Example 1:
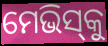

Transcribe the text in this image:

ମେଭିସ୍‌କୁ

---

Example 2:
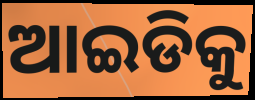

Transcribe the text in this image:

ଆଇଡିକୁ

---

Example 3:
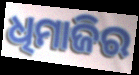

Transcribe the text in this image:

ଧିମାଜିର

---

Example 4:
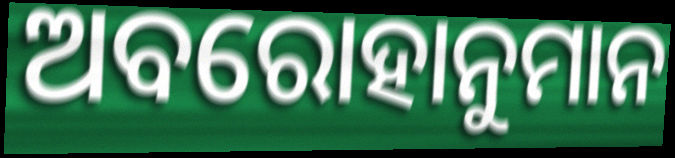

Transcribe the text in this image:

ଅବରୋହାନୁମାନ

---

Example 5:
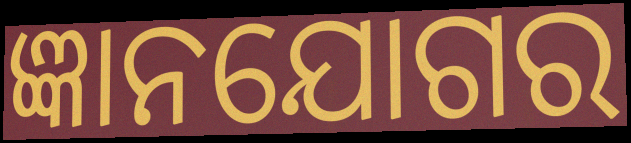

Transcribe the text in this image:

ଜ୍ଞାନଯୋଗର